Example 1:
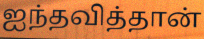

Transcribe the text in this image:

ஐந்தவித்தான்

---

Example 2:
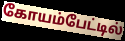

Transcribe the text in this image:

கோயம்பேட்டில்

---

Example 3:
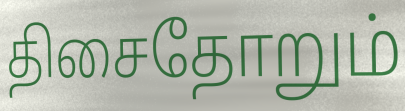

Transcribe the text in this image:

திசைதோறும்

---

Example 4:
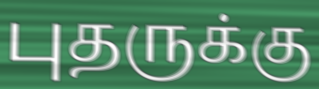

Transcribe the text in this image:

புதருக்கு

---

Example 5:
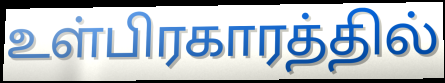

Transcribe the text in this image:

உள்பிரகாரத்தில்